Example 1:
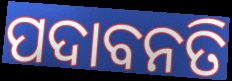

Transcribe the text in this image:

ପଦାବନତି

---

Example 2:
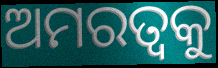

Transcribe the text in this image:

ଅମରତ୍ୱକୁ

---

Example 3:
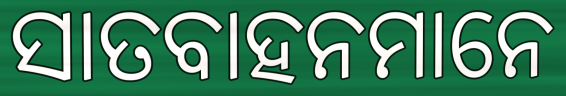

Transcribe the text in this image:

ସାତବାହନମାନେ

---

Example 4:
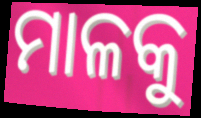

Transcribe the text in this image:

ମାଳକୁ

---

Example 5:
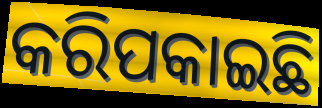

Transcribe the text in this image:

କରିପକାଇଛି